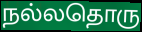
நல்லதொரு